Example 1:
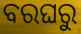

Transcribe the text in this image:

ବରଘରୁ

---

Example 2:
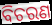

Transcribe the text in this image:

ବିଚରଣ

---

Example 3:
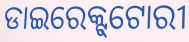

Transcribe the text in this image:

ଡାଇରେକ୍ଟ୍‌ଟୋରୀ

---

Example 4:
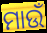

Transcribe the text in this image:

ମାଉଁ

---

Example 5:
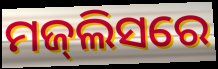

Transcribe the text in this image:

ମଜ୍‌ଲିସରେ